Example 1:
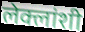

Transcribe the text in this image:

लेक्लांशी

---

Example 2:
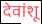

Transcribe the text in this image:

देवांशू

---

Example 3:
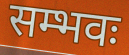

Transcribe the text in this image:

सम्भवः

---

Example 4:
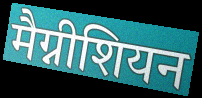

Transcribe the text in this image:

मैग्नीशियन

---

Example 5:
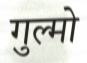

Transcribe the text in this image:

गुल्मो